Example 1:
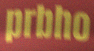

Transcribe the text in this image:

prbho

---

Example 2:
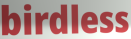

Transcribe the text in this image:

birdless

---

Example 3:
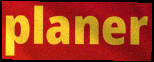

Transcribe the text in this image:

planer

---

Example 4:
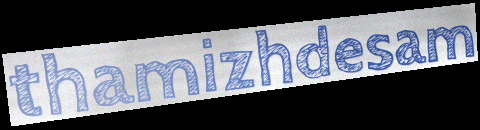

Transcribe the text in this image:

thamizhdesam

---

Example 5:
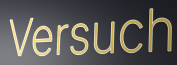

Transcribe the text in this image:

Versuch